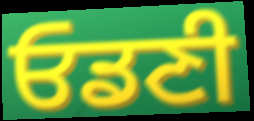
ਓਡਣੀ